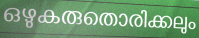
ഒഴുകരുതൊരിക്കലും